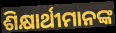
ଶିକ୍ଷାର୍ଥୀମାନଙ୍କ